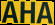
AHA